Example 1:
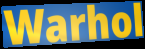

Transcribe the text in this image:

Warhol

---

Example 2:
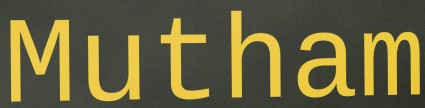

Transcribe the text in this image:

Mutham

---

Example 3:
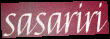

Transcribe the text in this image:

sasariri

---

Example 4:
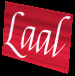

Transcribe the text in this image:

Laal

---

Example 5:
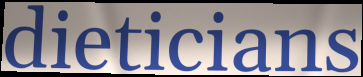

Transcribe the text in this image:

dieticians